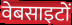
वेबसाइटों